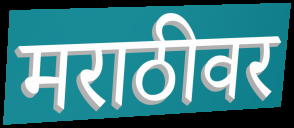
मराठीवर